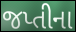
જપ્તીના